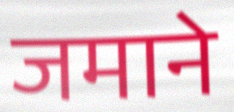
जमाने